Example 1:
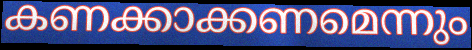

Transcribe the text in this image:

കണക്കാക്കണമെന്നും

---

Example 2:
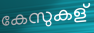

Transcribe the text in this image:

കേസുകള്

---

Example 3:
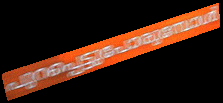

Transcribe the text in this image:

പുറപ്പെട്ടുപോരുമ്പോൾ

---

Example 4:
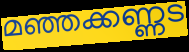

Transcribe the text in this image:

മഞ്ഞക്കണ്ണട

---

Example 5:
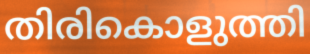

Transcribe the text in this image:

തിരികൊളുത്തി